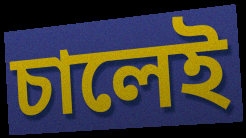
চালেই